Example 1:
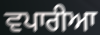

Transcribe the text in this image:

ਵਪਾਰੀਆ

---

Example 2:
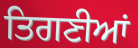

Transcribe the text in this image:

ਤਿਗਣੀਆਂ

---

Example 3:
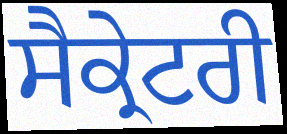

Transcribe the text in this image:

ਸੈਕ੍ਰੇਟਰੀ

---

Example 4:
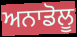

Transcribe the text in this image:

ਅਨਾਡੋਲੂ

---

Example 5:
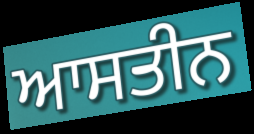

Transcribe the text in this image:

ਆਸਤੀਨ